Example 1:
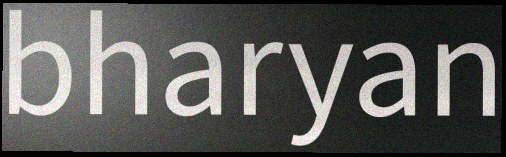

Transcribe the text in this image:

bharyan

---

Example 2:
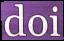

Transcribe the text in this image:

doi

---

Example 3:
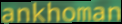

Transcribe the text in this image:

ankhoman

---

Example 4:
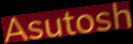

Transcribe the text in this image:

Asutosh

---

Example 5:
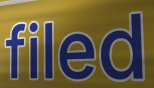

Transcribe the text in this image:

filed